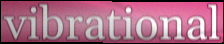
vibrational